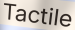
Tactile